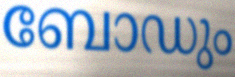
ബോഡും